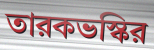
তারকভস্কির